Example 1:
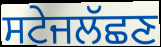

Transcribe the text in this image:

ਸਟੇਜਲੱਛਣ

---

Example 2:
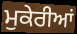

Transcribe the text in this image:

ਮੁਕੇਰੀਆਂ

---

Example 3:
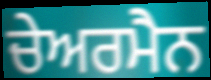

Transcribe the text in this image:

ਚੇਅਰਮੈਨ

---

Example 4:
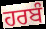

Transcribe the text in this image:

ਹਰਬੰ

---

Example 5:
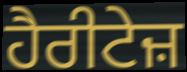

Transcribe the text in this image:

ਹੈਰੀਟੇਜ਼